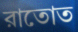
রাতোত